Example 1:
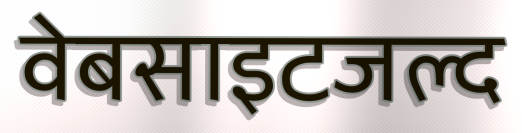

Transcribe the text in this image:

वेबसाइटजल्द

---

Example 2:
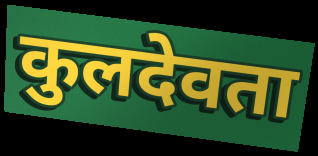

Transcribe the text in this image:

कुलदेवता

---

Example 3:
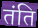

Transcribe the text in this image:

तंति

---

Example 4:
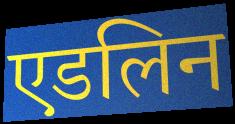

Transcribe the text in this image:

एडलिन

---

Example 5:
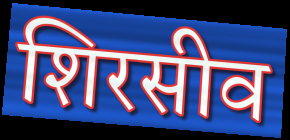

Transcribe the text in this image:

शिरसीव